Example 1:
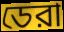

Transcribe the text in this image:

ডেরা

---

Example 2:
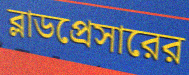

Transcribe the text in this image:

ব্লাডপ্রেসারের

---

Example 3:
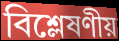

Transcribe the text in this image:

বিশ্লেষণীয়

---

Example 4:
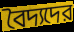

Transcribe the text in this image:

বৈদ্যদের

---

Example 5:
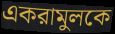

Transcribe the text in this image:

একরামুলকে